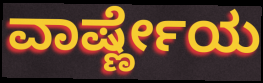
ವಾರ್ಷ್ಣೇಯ